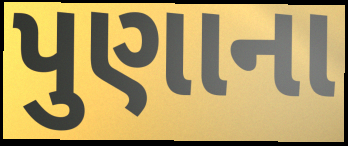
પુણાના